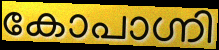
കോപാഗ്നി